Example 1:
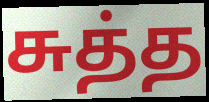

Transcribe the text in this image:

சுத்த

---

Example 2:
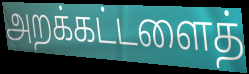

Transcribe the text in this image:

அறக்கட்டளைத்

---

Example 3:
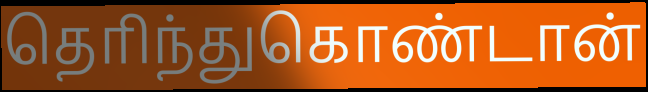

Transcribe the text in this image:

தெரிந்துகொண்டான்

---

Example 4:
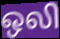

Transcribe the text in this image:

ஒலி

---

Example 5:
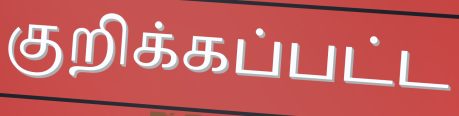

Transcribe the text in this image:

குறிக்கப்பட்ட